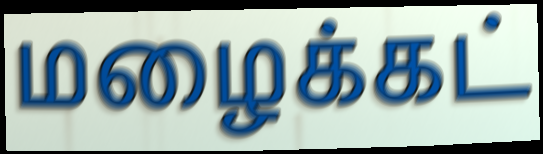
மழைக்கட்